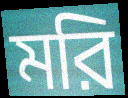
মরি